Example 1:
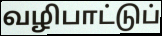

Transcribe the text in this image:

வழிபாட்டுப்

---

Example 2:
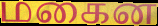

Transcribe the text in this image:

மகைன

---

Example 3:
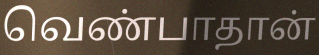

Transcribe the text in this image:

வெண்பாதான்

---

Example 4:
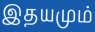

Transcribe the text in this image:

இதயமும்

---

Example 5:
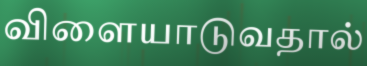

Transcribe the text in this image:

விளையாடுவதால்